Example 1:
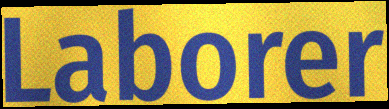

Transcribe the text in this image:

Laborer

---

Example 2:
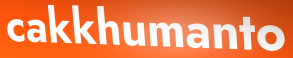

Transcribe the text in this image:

cakkhumanto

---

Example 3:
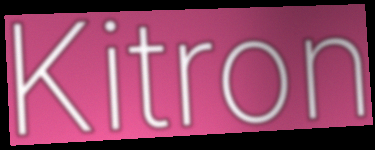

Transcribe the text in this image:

Kitron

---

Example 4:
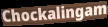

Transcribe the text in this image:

Chockalingam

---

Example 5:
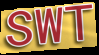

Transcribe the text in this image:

SWT